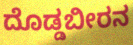
ದೊಡ್ಡಬೀರನ